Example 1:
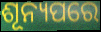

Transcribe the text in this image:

ଶୂନ୍ୟପରେ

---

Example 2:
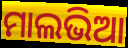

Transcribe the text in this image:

ମାଲଭିଆ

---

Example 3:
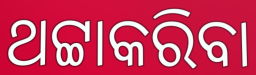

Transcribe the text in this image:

ଥଟ୍ଟାକରିବା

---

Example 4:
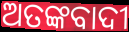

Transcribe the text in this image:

ଅତଙ୍କବାଦୀ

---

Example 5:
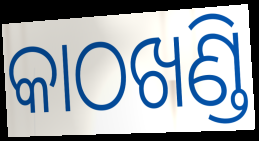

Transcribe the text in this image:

କାଠଖଣ୍ଡି